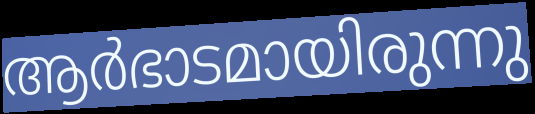
ആർഭാടമായിരുന്നു